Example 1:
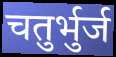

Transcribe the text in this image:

चतुर्भुर्ज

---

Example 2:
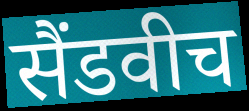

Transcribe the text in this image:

सैंडवीच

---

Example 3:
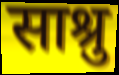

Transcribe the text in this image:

साश्रु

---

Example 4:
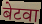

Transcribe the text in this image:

बेटवा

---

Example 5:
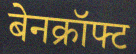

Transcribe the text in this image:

बेनक्रॉफ्ट